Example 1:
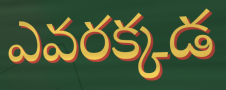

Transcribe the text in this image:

ఎవరక్కడ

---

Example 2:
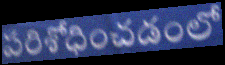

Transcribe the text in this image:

పరిశోధించడంలో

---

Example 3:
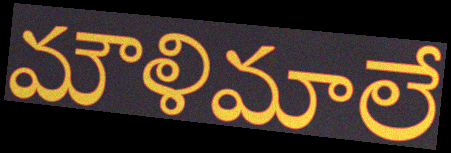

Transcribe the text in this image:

మౌళిమాలే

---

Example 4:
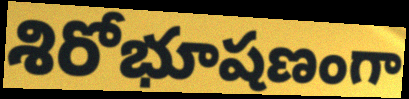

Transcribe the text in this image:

శిరోభూషణంగా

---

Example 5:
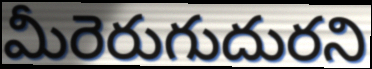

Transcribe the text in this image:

మీరెరుగుదురని